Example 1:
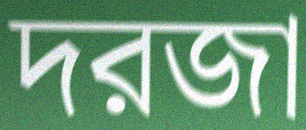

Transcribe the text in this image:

দরজা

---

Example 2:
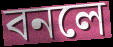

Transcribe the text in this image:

বনলে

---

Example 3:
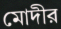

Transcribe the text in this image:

মোদীর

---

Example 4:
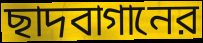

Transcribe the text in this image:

ছাদবাগানের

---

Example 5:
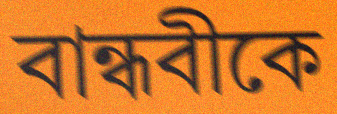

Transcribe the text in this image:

বান্ধবীকে